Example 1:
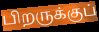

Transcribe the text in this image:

பிறருக்குப்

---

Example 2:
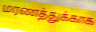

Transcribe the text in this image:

மரணத்துக்காக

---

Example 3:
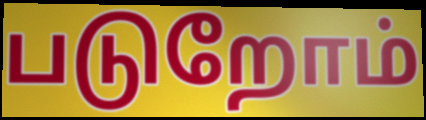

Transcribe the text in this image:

படுறோம்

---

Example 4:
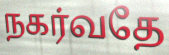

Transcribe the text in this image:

நகர்வதே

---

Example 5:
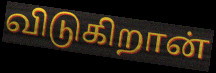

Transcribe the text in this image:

விடுகிறான்